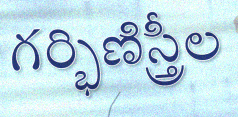
గర్భిణిస్త్రీల